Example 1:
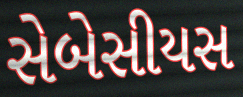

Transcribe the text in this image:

સેબેસીયસ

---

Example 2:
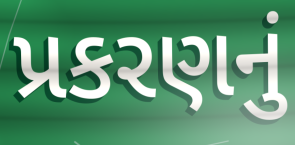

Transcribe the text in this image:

પ્રકરણનું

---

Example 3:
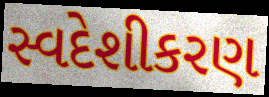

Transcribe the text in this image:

સ્વદેશીકરણ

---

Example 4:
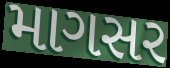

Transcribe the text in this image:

માગસર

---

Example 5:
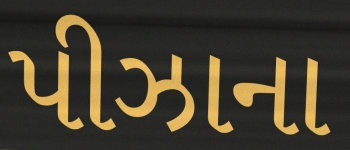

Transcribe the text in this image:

પીઝાના